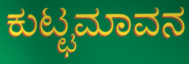
ಕುಟ್ಟಮಾವನ